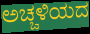
ಅಚ್ಚಳಿಯದ